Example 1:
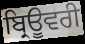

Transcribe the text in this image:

ਬ੍ਰਿਊਵਰੀ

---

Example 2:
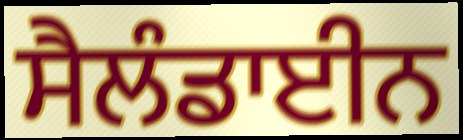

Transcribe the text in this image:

ਸੈਲੰਡਾਈਨ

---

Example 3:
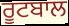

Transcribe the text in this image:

ਰੂਟਬਾਲ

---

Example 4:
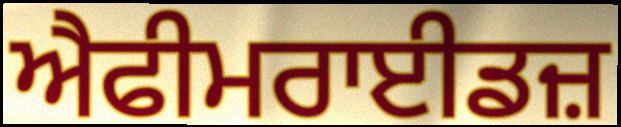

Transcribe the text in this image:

ਐਫੀਮਰਾਈਡਜ਼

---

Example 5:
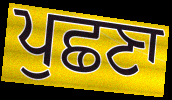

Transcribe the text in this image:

ਪੁਛਣਾ